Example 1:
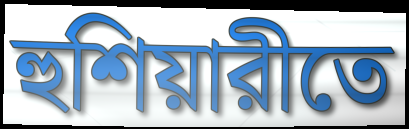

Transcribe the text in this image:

হুশিয়ারীতে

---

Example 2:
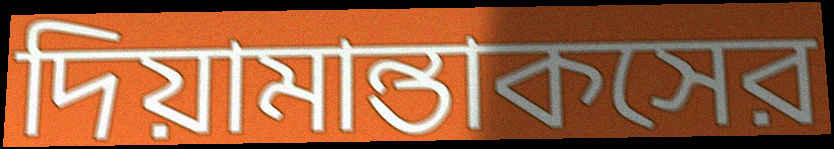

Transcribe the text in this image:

দিয়ামান্তাকসের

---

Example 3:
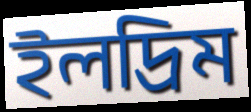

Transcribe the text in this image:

ইলদ্রিম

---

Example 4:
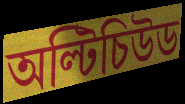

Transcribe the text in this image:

অল্টিচিউড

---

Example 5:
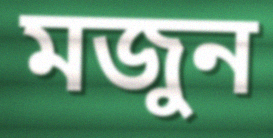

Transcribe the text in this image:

মজুন